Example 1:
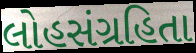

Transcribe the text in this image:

લોહસંગ્રહિતા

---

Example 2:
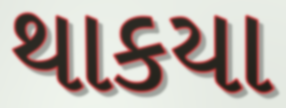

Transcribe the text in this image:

થાકયા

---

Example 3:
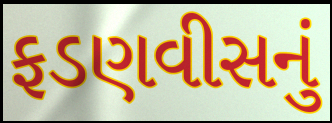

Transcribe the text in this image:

ફડણવીસનું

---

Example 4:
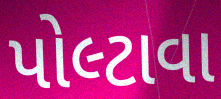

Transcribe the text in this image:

પોલ્ટાવા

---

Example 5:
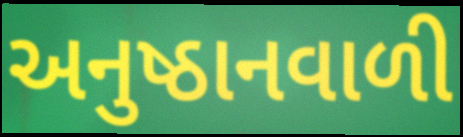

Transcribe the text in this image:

અનુષ્ઠાનવાળી